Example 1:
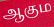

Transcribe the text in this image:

ஆகும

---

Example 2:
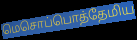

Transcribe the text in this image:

மெசொப்பொத்தேமிய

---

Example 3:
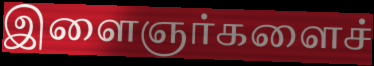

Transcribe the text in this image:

இளைஞர்களைச்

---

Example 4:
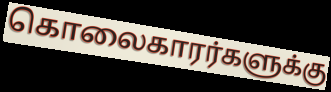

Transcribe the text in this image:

கொலைகாரர்களுக்கு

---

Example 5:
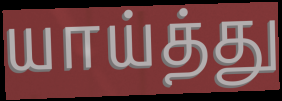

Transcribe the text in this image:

யாய்த்து